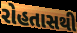
રોહતાસથી